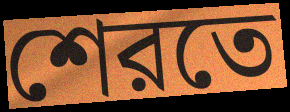
শেরতে